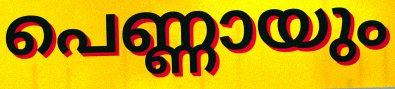
പെണ്ണായും